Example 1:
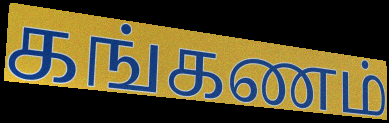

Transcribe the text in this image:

கங்கணம்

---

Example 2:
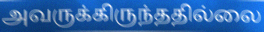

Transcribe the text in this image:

அவருக்கிருந்ததில்லை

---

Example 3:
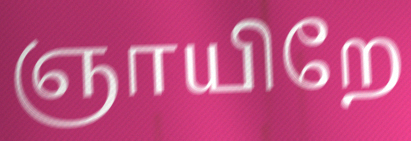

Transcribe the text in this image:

ஞாயிறே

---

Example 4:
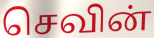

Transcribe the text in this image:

செவின்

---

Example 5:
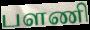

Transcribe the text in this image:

பளணி